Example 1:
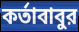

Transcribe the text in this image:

কর্তাবাবুর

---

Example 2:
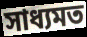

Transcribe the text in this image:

সাধ্যমত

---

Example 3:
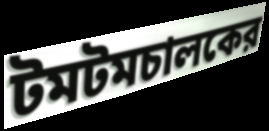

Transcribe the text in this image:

টমটমচালকের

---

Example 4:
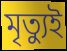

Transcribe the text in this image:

মৃত্যুই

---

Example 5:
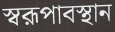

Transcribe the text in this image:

স্বরূপাবস্থান